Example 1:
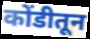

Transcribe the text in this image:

कोंडीतून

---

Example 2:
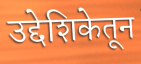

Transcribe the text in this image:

उद्देशिकेतून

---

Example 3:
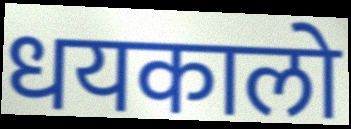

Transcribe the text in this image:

धयकालो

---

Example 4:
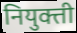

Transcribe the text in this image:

नियुक्ती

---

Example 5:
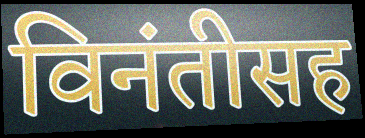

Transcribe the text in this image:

विनंतीसह